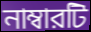
নাম্বারটি